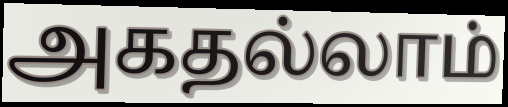
அகதல்லாம்